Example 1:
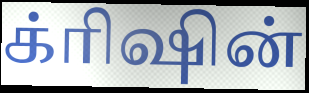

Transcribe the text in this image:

க்ரிஷின்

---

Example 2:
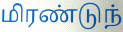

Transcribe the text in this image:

மிரண்டுந்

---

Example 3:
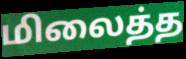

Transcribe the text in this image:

மிலைத்த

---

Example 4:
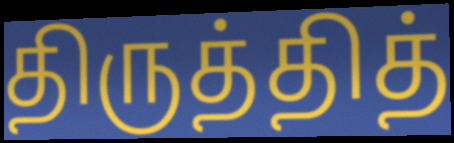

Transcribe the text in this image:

திருத்தித்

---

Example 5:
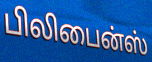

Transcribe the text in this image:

பிலிபைன்ஸ்